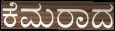
ಕೆಮರಾದ